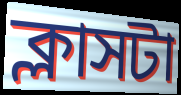
ক্লাসটা